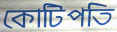
কোটিপতি